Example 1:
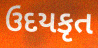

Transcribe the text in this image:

ઉદયકૃત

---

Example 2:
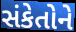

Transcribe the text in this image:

સંકેતોને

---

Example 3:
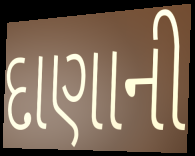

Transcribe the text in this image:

દાણાની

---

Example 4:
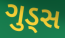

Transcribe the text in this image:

ગુડ્સ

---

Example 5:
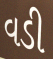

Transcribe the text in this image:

વડી